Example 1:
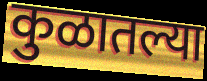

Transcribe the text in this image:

कुळातल्या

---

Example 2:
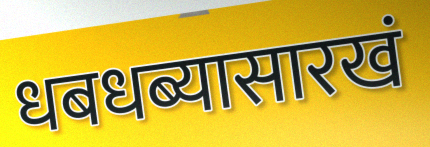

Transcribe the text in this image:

धबधब्यासारखं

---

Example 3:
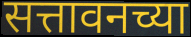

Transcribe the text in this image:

सत्तावनच्या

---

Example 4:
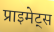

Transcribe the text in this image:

प्राइमेट्स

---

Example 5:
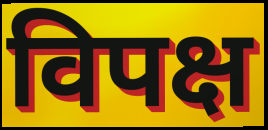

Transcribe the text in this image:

विपक्ष